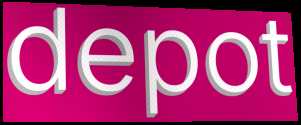
depot